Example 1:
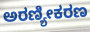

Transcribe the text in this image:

ಅರಣ್ಯೀಕರಣ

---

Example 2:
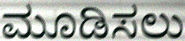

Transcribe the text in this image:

ಮೂಡಿಸಲು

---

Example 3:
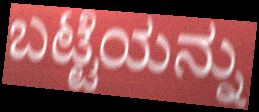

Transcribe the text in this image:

ಬಟ್ಟೆಯನ್ನು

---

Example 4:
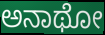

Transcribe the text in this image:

ಅನಾಥೋ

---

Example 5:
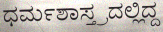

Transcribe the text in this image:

ಧರ್ಮಶಾಸ್ತ್ರದಲ್ಲಿದ್ದ